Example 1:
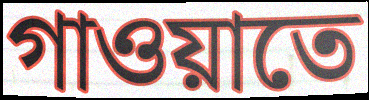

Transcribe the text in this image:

গাওয়াতে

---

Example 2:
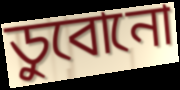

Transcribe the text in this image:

ডুবোনো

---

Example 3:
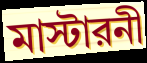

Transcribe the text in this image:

মাস্টারনী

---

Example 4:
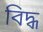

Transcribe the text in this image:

বিদ্ধ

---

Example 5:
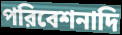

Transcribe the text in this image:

পরিবেশনাদি